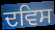
ਦਵਿਸ